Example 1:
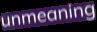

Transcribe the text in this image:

unmeaning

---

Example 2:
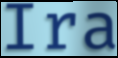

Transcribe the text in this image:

Ira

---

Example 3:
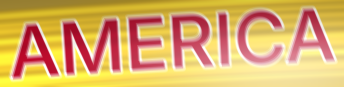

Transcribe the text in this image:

AMERICA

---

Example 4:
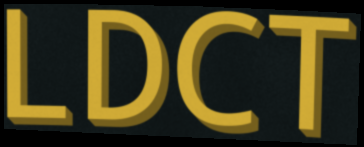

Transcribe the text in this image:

LDCT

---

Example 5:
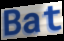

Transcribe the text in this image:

Bat